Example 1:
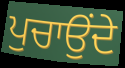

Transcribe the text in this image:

ਪੁਚਾਉਂਦੇ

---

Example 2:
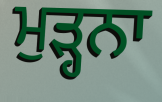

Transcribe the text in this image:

ਮੁੜ੍ਹਨਾ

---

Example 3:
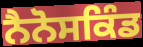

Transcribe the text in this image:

ਨੈਨੋਸਕਿੰਡ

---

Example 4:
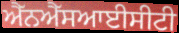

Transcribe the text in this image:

ਐੱਨਐੱਸਆਈਸੀਟੀ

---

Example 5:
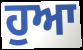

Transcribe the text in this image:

ਹੁਆ